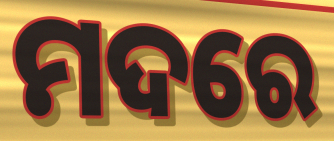
ମଦରେ